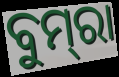
ବୁମ୍‌ରା